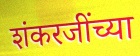
शंकरजींच्या